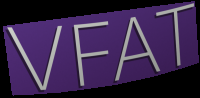
VFAT